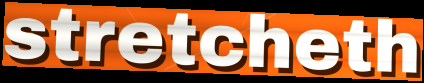
stretcheth